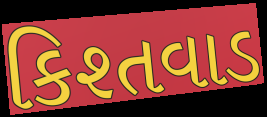
કિશ્તવાડ